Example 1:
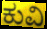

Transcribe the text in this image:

ಕುವಿ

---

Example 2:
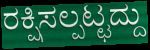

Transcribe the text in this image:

ರಕ್ಷಿಸಲ್ಪಟ್ಟದ್ದು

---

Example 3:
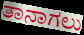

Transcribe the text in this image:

ತಾನಾಗಲು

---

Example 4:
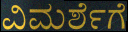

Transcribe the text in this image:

ವಿಮರ್ಶೆಗೆ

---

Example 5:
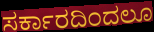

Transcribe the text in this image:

ಸರ್ಕಾರದಿಂದಲೂ